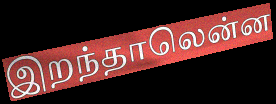
இறந்தாலென்ன